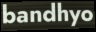
bandhyo